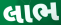
લાભ